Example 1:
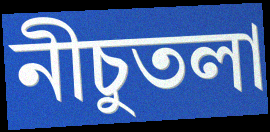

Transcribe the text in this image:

নীচুতলা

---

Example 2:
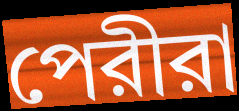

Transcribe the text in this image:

পেরীরা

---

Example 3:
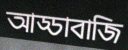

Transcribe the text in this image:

আড্ডাবাজি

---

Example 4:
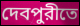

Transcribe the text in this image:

দেবপুরীতে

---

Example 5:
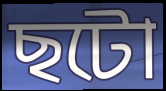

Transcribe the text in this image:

ছটো